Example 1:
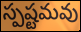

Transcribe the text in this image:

స్పష్టమవు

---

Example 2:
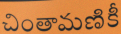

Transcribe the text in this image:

చింతామణికీ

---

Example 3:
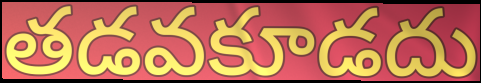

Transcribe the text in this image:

తడవకూడదు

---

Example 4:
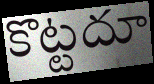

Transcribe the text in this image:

కొట్టదూ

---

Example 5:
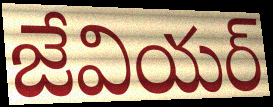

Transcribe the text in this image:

జేవియర్